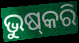
ଭୁଷ୍‌କରି